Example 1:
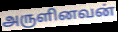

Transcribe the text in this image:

அருளினவன்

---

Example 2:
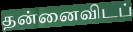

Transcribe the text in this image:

தன்னைவிடப்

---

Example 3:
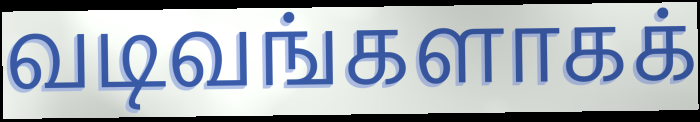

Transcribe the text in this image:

வடிவங்களாகக்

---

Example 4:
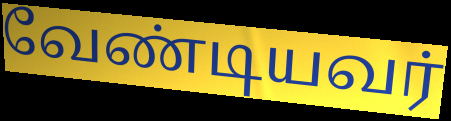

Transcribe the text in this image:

வேண்டியவர்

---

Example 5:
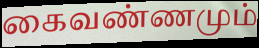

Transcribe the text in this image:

கைவண்ணமும்